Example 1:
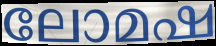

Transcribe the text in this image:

ലോമഷ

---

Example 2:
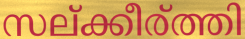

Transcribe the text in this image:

സല്ക്കീര്ത്തി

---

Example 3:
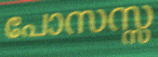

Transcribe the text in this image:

പോസസ്സ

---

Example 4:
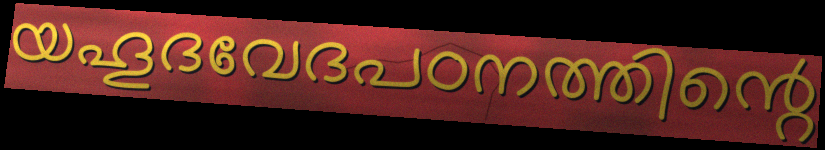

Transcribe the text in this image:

യഹൂദവേദപഠനത്തിന്റെ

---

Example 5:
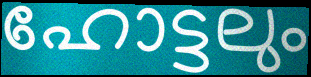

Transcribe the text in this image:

ഹോട്ടലും